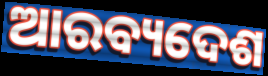
ଆରବ୍ୟଦେଶ